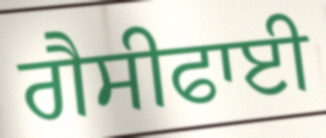
ਗੈਸੀਫਾਈ